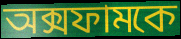
অক্সফামকে